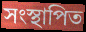
সংস্থাপিত